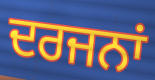
ਦਰਜਨਾਂ